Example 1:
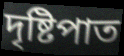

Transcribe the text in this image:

দৃষ্টিপাত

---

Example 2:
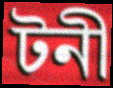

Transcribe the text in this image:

টনী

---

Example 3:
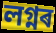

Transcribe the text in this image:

লগ্নৰ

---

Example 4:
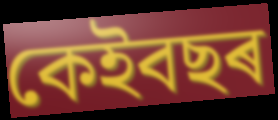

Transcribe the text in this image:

কেইবছৰ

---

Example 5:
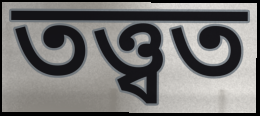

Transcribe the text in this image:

তত্ত্বত